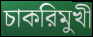
চাকরিমুখী